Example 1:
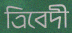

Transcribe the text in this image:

ত্রিবেদী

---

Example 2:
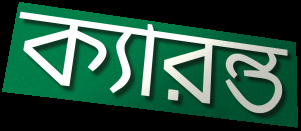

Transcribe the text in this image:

ক্যারন্ত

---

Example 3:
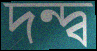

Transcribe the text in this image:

দন্দ্ব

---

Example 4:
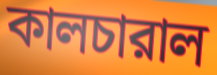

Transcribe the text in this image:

কালচারাল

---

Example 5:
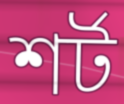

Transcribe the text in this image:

শর্ট